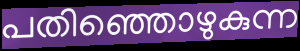
പതിഞ്ഞൊഴുകുന്ന